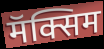
मॅक्सिम